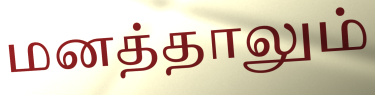
மனத்தாலும்